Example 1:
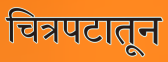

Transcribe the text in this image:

चित्रपटातून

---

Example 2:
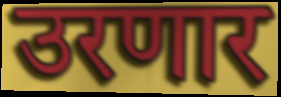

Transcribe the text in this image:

उरणार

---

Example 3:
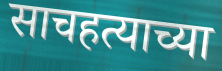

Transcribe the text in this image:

साचहत्याच्या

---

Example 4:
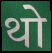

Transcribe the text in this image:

थो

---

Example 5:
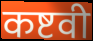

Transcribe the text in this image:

कष्टवी